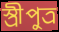
স্ত্রীপুত্র